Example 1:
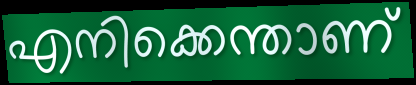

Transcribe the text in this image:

എനിക്കെന്താണ്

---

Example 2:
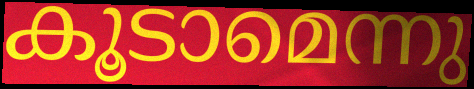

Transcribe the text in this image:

കൂടാമെന്നു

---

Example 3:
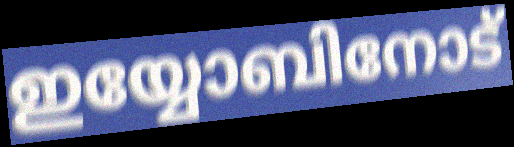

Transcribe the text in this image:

ഇയ്യോബിനോട്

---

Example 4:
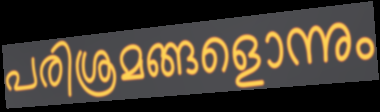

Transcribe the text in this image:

പരിശ്രമങ്ങളൊന്നും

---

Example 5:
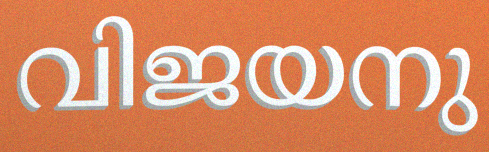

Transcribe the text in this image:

വിജയനു